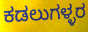
ಕಡಲುಗಳ್ಳರ